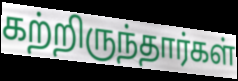
கற்றிருந்தார்கள்